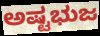
ಅಷ್ಟಭುಜ